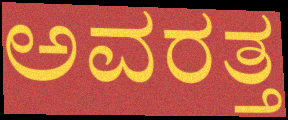
ಅವರತ್ತ